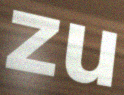
zu